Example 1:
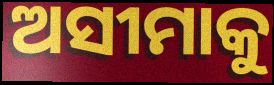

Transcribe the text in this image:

ଅସୀମାକୁ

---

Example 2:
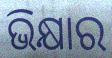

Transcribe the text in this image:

ଭିକ୍ଷାର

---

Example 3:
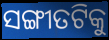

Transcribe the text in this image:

ସଙ୍ଗୀତଟିକୁ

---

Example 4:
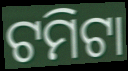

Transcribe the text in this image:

ଟମିଟା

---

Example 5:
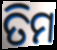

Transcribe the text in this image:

ତିମ